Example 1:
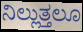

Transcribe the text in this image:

ನಿಲ್ಲುತ್ತಲೂ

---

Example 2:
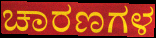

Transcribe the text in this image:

ಚಾರಣಗಳ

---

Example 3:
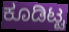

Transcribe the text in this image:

ಕೂಡಿಟ್ಟ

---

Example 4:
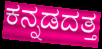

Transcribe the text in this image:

ಕನ್ನಡದತ್ತ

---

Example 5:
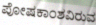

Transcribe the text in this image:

ಪೋಷಕಾಂಶವಿರುವ